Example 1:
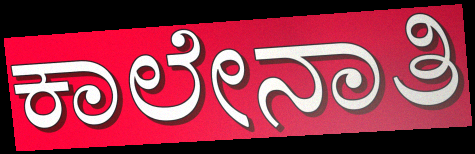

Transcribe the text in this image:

ಕಾಲೇನಾತಿ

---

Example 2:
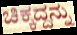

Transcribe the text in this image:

ಚಿಕ್ಕದ್ದನ್ನು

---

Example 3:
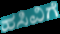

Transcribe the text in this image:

ಹಸಿವಿಗೆ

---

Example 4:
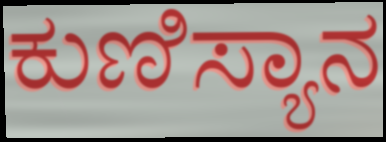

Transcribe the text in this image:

ಕುಣಿಸ್ಯಾನ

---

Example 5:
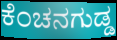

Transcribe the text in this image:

ಕೆಂಚನಗುಡ್ಡ